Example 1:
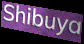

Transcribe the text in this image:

Shibuya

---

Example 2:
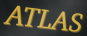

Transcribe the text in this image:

ATLAS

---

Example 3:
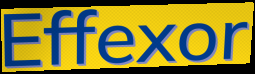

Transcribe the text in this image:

Effexor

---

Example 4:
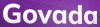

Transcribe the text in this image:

Govada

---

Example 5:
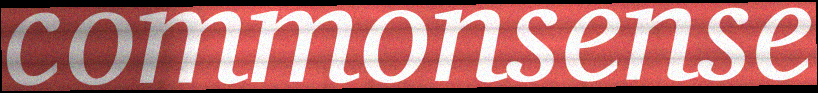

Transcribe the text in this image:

commonsense